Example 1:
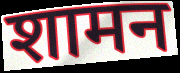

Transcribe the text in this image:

शामन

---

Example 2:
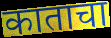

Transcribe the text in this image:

काताचा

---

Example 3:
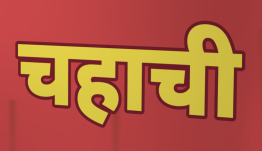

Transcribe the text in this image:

चहाची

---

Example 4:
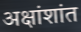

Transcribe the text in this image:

अक्षांशांत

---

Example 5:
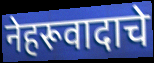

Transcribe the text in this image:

नेहरूवादाचे